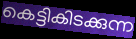
കെട്ടികിടക്കുന്ന